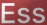
Ess